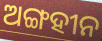
ଅଙ୍ଗହୀନ